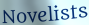
Novelists